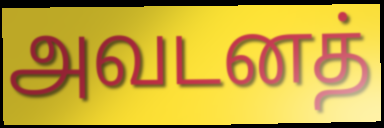
அவடனத்